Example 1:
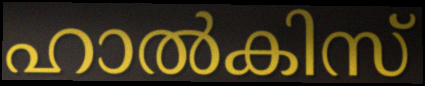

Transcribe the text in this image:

ഹാൽകിസ്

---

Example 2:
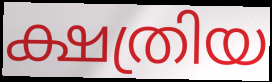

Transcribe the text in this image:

ക്ഷത്രിയ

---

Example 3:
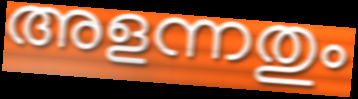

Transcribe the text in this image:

അളന്നതും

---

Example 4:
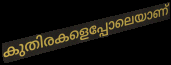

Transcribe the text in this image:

കുതിരകളെപ്പോലെയാണ്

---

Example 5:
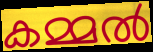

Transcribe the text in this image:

കമ്മൽ